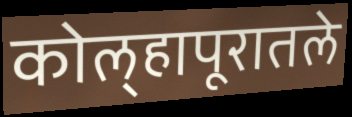
कोल्हापूरातले